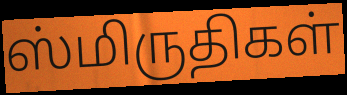
ஸ்மிருதிகள்